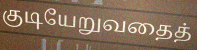
குடியேறுவதைத்